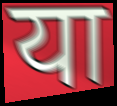
या